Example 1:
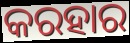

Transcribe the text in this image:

କରହାର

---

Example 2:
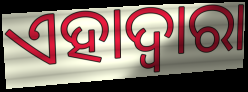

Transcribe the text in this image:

ଏହାଦ୍ୱାରା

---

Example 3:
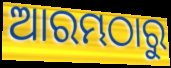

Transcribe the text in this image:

ଆରମ୍ଭଠାରୁ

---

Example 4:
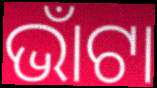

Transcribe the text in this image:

ଭାଁଟା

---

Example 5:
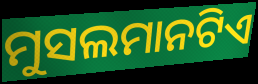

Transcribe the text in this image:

ମୁସଲମାନଟିଏ